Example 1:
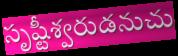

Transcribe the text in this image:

సృష్టీశ్వరుడనుచు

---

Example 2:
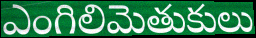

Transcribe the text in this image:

ఎంగిలిమెతుకులు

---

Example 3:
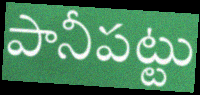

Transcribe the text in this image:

పానీపట్టు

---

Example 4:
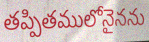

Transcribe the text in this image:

తప్పితములోనైనను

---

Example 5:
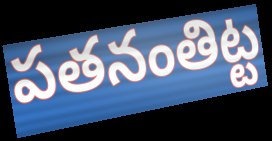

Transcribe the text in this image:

పతనంతిట్ట